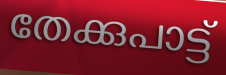
തേക്കുപാട്ട്